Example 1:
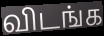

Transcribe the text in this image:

விடங்க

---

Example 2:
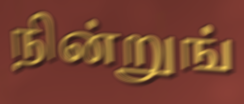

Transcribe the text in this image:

நின்றுங்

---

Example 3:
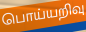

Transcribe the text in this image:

பொய்யறிவு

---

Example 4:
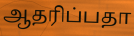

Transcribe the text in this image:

ஆதரிப்பதா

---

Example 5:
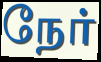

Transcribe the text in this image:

நேர்